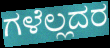
ಗಳೆಲ್ಲದರ